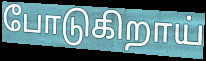
போடுகிறாய்